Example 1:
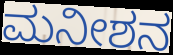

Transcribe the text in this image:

ಮನೀಶನ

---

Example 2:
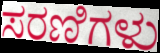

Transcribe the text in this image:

ಸರಣಿಗಳು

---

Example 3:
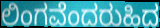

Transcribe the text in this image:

ಲಿಂಗವೆಂದರುಹಿದ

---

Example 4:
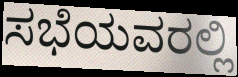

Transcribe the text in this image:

ಸಭೆಯವರಲ್ಲಿ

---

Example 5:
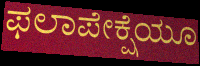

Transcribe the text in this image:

ಫಲಾಪೇಕ್ಷೆಯೂ